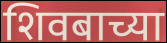
शिवबाच्या